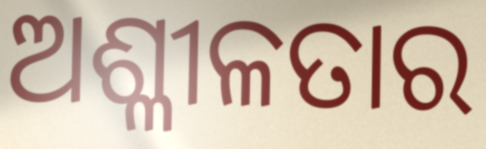
ଅଶ୍ଳୀଳତାର